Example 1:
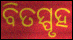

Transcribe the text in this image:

ବିତସ୍ପୃହ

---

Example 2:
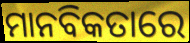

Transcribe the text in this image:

ମାନବିକତାରେ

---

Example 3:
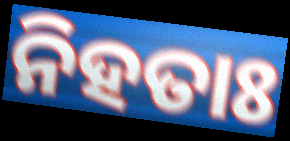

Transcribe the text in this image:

ନିହତାଃ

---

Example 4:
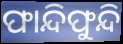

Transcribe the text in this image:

ଫାନ୍ଦିଫୁନ୍ଦି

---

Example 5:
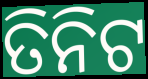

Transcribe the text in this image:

ତିନିଟ